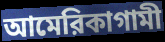
আমেরিকাগামী